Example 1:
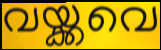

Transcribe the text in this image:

വയ്ക്കവെ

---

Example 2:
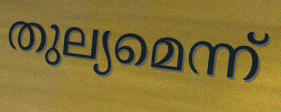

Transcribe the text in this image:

തുല്യമെന്ന്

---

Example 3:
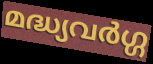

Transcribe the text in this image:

മദ്ധ്യവർഗ്ഗ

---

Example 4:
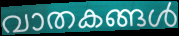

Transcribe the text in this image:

വാതകങ്ങൾ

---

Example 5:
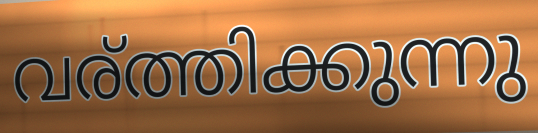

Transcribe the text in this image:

വര്ത്തിക്കുന്നു